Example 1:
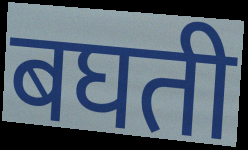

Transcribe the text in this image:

बघती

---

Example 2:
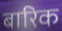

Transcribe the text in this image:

बारिक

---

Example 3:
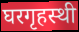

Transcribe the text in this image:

घरगृहस्थी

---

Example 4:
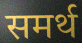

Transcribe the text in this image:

समर्थ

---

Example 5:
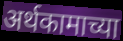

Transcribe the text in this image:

अर्थकामाच्या